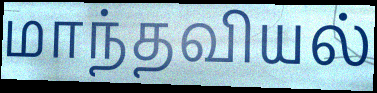
மாந்தவியல்